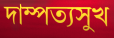
দাম্পত্যসুখ